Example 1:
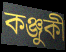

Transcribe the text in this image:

কঞ্জুকী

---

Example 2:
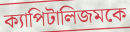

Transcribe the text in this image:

ক্যাপিটালিজমকে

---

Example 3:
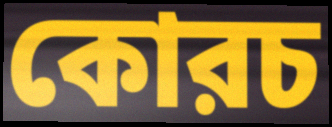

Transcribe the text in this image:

কোরচ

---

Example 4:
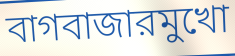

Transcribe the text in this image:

বাগবাজারমুখো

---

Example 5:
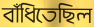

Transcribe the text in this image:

বাঁধিতেছিল